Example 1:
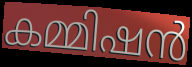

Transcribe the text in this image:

കമ്മിഷൻ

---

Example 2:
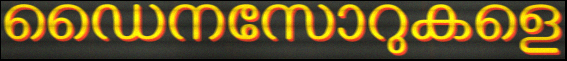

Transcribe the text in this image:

ഡൈനസോറുകളെ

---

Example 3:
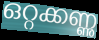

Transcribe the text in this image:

ഒറ്റക്കണ്ണു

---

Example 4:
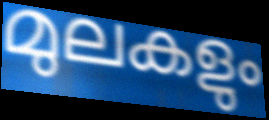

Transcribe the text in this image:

മുലകളും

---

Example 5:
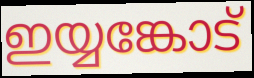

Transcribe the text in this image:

ഇയ്യങ്കോട്